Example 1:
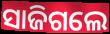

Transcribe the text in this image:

ସାଜିଗଲେ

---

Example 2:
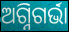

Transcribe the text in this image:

ଅଗ୍ନିଗର୍ଭା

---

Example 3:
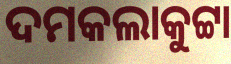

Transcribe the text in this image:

ଦମକଲାକୁଟ୍ଟା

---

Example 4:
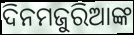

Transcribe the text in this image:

ଦିନମଜୁରିଆଙ୍କ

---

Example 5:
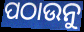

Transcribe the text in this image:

ପଠାଉନୁ